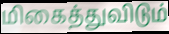
மிகைத்துவிடும்